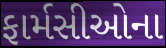
ફાર્મસીઓના